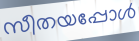
സീതയപ്പോൾ